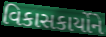
વિકાસકાર્યોને